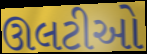
ઊલટીઓ